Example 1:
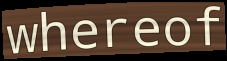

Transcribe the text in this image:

whereof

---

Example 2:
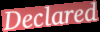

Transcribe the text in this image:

Declared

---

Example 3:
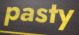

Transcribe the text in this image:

pasty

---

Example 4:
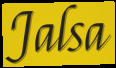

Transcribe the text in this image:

Jalsa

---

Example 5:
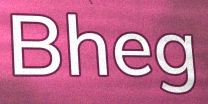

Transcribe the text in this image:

Bheg